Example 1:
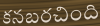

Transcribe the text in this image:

కనబరచింది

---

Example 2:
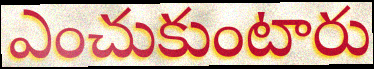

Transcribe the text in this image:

ఎంచుకుంటారు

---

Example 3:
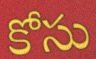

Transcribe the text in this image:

కోసు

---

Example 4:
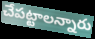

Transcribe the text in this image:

చేపట్టాలన్నారు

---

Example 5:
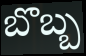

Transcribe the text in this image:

బొబ్బ